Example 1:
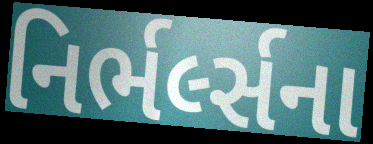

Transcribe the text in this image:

નિર્ભર્લ્સના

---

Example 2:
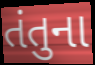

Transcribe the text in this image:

તંતુના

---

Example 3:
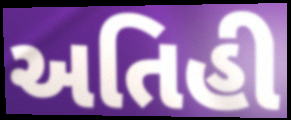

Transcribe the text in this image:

અતિહી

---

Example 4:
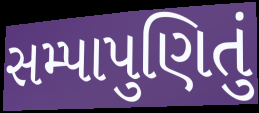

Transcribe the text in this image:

સમ્પાપુણિતું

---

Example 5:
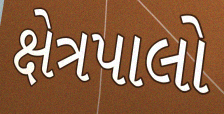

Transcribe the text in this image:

ક્ષેત્રપાલો